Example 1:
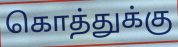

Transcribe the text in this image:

கொத்துக்கு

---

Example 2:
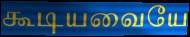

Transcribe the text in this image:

கூடியவையே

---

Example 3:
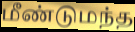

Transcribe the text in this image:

மீண்டுமந்த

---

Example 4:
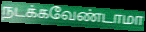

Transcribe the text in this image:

நடக்கவேண்டாமா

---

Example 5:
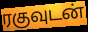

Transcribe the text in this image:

ரகுவுடன்